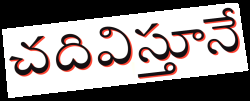
చదివిస్తూనే